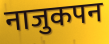
नाजुकपन